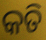
କତି